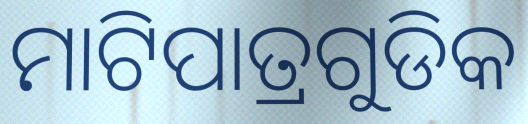
ମାଟିପାତ୍ରଗୁଡିକ